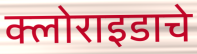
क्लोराइडाचे